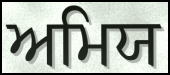
ਅਮਿਯ